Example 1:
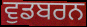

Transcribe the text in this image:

ਵੁਡਬਰਨ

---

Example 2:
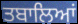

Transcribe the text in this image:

ਤਬਾਲਿਆਂ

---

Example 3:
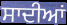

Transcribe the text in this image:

ਸਾਦੀਆਂ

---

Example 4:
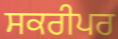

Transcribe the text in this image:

ਸਕਰੀਪਰ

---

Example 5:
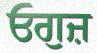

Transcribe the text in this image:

ਓਗੁਜ਼